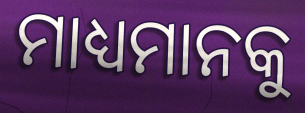
ମାଧ୍ୟମାନକୁ